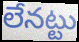
లేనట్టు